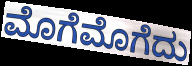
ಮೊಗೆಮೊಗೆದು